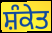
ਸ਼ੰਕੇਤ